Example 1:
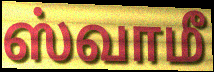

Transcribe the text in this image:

ஸ்வாமீ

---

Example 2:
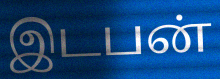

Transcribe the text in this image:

இடபன்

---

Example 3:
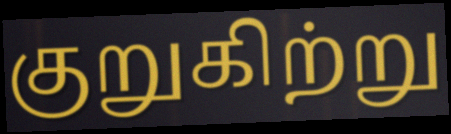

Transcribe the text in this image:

குறுகிற்று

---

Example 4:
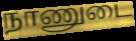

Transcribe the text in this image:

நாணுடை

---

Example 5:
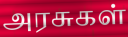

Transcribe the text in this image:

அரசுகள்